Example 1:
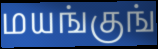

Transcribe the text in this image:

மயங்குங்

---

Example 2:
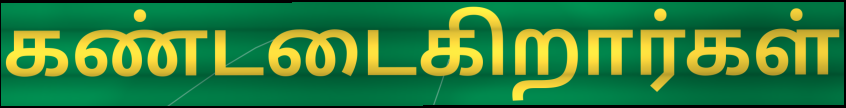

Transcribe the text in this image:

கண்டடைகிறார்கள்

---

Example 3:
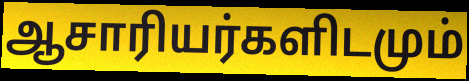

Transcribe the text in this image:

ஆசாரியர்களிடமும்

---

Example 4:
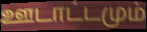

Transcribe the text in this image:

ஊடாட்டமும்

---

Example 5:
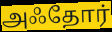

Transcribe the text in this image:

அஃதோர்